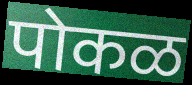
पोकळ